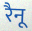
रैनू